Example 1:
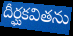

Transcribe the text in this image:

దీర్ఘకవితను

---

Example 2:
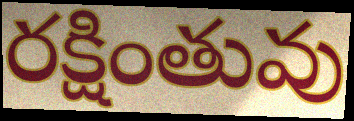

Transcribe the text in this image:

రక్షింతువు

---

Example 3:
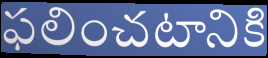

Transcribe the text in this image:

ఫలించటానికి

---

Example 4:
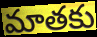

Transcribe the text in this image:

మాతకు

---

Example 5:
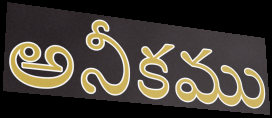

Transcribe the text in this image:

అనీకము